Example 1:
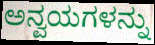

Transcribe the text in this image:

ಅನ್ವಯಗಳನ್ನು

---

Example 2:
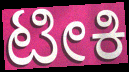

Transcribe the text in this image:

ಟೀಕಿ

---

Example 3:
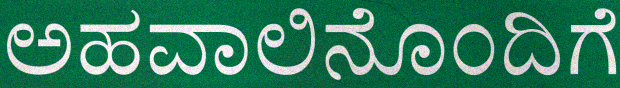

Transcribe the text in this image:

ಅಹವಾಲಿನೊಂದಿಗೆ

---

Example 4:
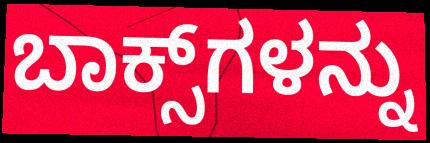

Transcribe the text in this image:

ಬಾಕ್ಸ್‌ಗಳನ್ನು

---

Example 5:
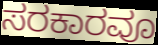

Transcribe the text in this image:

ಸರಕಾರವೂ